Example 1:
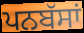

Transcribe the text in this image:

ਪਨਬੱਸਾਂ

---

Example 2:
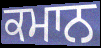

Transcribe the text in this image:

ਕਮਾਨ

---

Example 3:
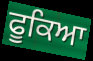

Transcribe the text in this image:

ਫੂਕਿਆ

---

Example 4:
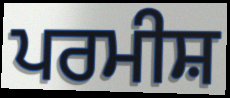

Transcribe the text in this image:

ਪਰਮੀਸ਼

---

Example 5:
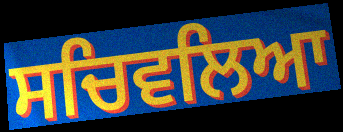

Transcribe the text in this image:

ਸਚਿਵਲਿਆ